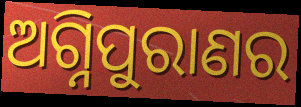
ଅଗ୍ନିପୁରାଣର